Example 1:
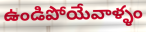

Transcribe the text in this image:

ఉండిపోయేవాళ్ళం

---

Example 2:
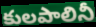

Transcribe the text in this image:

కులపాలినీ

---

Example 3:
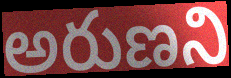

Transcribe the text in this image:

అరుణని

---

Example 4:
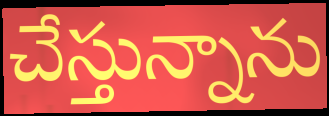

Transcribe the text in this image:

చేస్తున్నాను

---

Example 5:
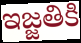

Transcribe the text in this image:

ఇజ్జతికి